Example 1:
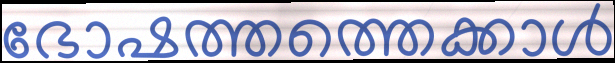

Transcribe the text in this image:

ഭോഷത്തത്തെക്കാൾ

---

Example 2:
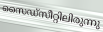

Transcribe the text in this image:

സൈഡ്സീറ്റിലിരുന്നു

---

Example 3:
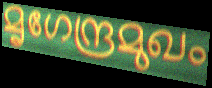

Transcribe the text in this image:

മൃഗേന്ദ്രമുഖം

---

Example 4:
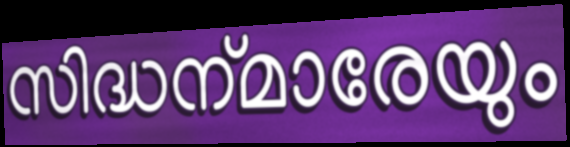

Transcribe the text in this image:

സിദ്ധന്‌മാരേയും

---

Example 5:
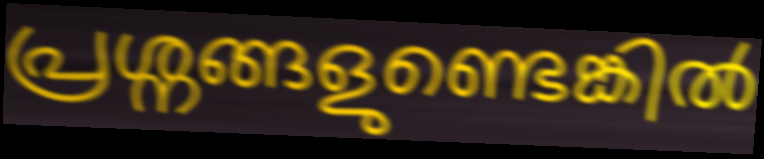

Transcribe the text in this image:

പ്രശ്നങ്ങളുണ്ടെങ്കിൽ